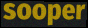
sooper